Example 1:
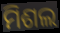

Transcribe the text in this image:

ମିଶଲ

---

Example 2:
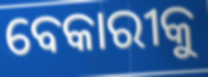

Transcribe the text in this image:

ବେକାରୀକୁ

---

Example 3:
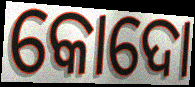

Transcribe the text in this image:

କୋଦୋ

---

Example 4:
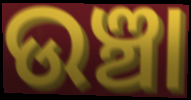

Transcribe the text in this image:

ଉଞ୍ଚା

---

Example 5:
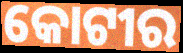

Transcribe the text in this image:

କୋଟୀର